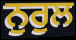
ਨੁਰੁਲ